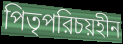
পিতৃপরিচয়হীন